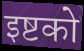
इष्टको